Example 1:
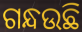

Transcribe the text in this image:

ଗନ୍ଧଉଛି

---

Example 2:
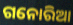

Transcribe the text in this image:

ଗନୋରିଆ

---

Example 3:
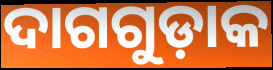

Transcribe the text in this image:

ଦାଗଗୁଡ଼ାକ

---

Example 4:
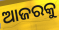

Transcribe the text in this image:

ଆଜରକୁ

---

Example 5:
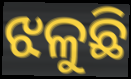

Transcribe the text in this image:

ଝଳୁଛି